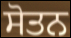
ਸੋਤਨ